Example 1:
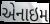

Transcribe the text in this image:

એનાઇમ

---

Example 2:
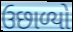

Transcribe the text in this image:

ઉછાળ્યો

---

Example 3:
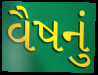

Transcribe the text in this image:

વૈષનું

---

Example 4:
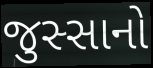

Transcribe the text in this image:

જુસ્સાનો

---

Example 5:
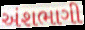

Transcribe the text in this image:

અંશભાગી